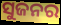
ସୁଜନର